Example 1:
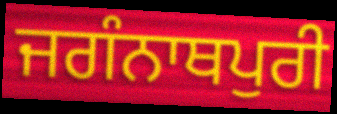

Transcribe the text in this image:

ਜਗੰਨਾਥਪੁਰੀ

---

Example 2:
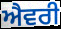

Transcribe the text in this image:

ਐਵਰੀ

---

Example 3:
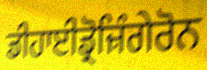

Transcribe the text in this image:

ਡੀਹਾਈਡ੍ਰੋਜ਼ਿੰਗੇਰੋਨ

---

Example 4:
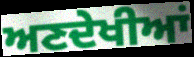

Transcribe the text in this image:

ਅਣਦੇਖੀਆਂ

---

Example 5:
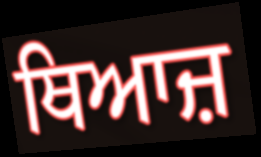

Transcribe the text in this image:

ਥਿਆਜ਼